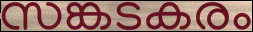
സങ്കടകരം